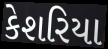
કેશરિયા